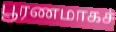
பூரணமாகச்